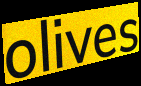
olives